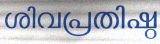
ശിവപ്രതിഷ്ഠ